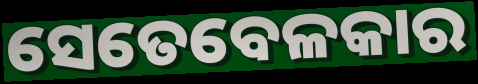
ସେତେବେଳକାର